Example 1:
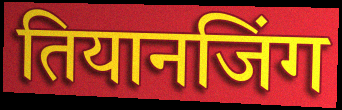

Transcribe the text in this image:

तियानजिंग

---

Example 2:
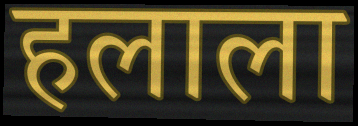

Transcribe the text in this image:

हलाला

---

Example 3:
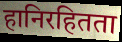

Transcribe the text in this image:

हानिरहितता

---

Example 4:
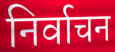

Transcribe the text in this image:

निर्वाचन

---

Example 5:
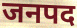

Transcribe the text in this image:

जनपद